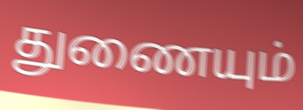
துணையும்